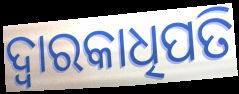
ଦ୍ୱାରକାଧିପତି